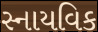
સ્નાયવિક